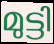
മുട്ടി